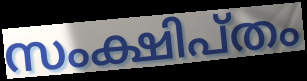
സംക്ഷിപ്തം